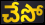
చేసో